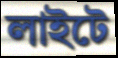
লাইটে